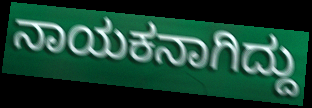
ನಾಯಕನಾಗಿದ್ದು